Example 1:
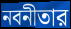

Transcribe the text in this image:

নবনীতার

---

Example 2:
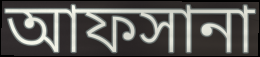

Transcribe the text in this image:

আফসানা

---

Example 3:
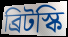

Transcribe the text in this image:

ব্রিটস্কি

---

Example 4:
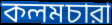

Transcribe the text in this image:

কলমচারা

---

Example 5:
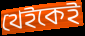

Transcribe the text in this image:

থেইকেই